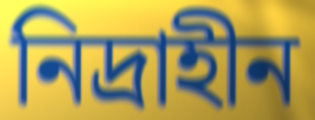
নিদ্রাহীন